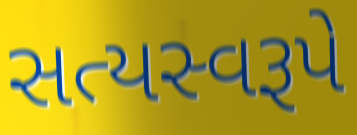
સત્યસ્વરૂપે